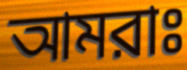
আমরাঃ